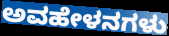
ಅವಹೇಳನಗಳು